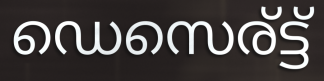
ഡെസെര്ട്ട്